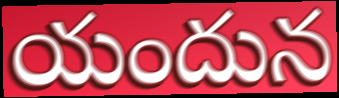
యందున